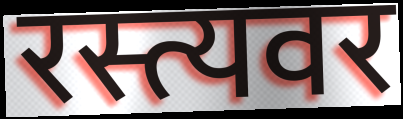
रस्त्यवर